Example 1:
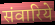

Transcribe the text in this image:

संवारिये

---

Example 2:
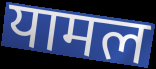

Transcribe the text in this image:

यामल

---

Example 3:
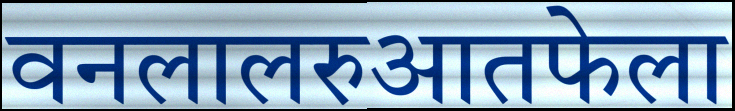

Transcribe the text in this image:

वनलालरुआतफेला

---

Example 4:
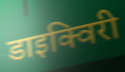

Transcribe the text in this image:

डाइक्विरी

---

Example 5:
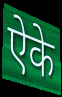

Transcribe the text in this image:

ऐके